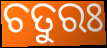
ଚତୁରଃ